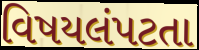
વિષયલંપટતા